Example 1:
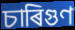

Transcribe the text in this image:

চাৰিগুণ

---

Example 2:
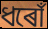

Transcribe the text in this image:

ধৰোঁ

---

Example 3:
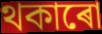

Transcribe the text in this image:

থকাৰো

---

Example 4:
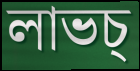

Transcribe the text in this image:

লাভচ্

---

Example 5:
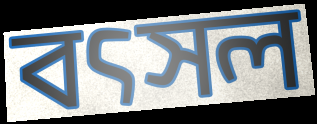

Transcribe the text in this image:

বৎসল